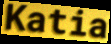
Katia